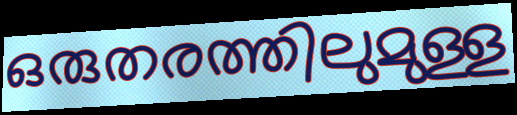
ഒരുതരത്തിലുമുള്ള